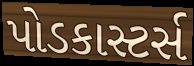
પોડકાસ્ટર્સ